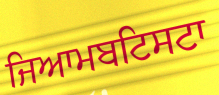
ਜਿਆਮਬਟਿਸਟਾ